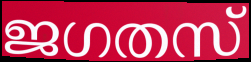
ജഗതസ്